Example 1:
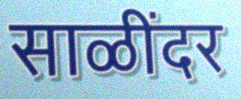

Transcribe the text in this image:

साळींदर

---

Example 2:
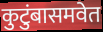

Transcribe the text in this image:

कुटुंबासमवेत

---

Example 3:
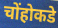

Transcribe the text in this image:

चोंहोकडे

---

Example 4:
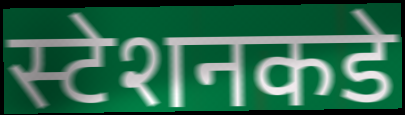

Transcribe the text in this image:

स्टेशनकडे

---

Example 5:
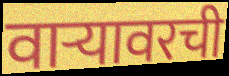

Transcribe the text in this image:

वार्‍यावरची